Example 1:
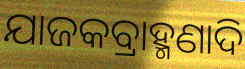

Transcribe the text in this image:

ଯାଜକବ୍ରାହ୍ମଣାଦି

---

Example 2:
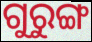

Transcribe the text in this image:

ଗୁରୁଙ୍ଗ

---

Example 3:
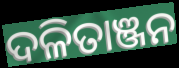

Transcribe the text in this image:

ଦଳିତାଞ୍ଜନ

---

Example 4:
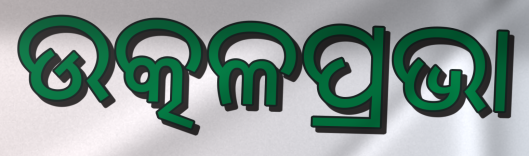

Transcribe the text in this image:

ଉତ୍କଳପ୍ରଭା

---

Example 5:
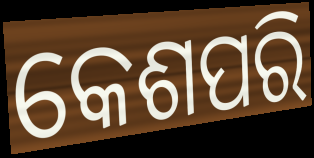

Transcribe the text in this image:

କେଶପରି